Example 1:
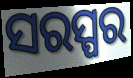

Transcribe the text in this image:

ସରସ୍ପର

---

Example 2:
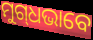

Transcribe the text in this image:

ମୁଗ୍‌ଧଭାବେ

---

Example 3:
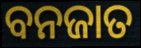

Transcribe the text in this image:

ବନଜାତ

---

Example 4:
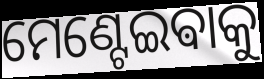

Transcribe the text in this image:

ମେଣ୍ଟେଇଵାକୁ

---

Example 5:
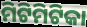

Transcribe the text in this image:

ମିଟିମିଟିକା